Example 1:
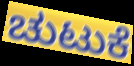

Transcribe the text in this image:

ಚುಟುಕೆ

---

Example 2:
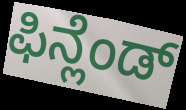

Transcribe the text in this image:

ಫಿನ್ಲೆಂಡ್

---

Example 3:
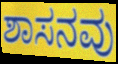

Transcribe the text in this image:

ಶಾಸನವು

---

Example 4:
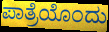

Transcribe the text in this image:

ಪಾತ್ರೆಯೊಂದು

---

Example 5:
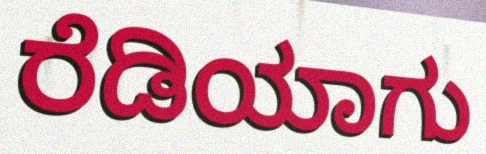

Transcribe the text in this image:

ರೆಡಿಯಾಗು